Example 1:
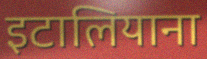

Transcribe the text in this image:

इटालियाना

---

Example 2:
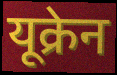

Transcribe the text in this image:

यूक्रेन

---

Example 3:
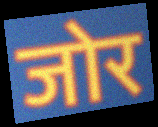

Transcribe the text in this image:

जोर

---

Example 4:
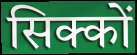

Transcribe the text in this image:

सिक्‍कों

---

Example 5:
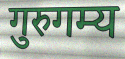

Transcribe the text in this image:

गुरुगम्य